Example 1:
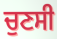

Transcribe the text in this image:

ਚੁਣਸੀ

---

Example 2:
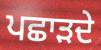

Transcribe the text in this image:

ਪਛਾੜਦੇ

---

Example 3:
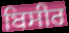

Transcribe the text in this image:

ਬਿਸੀਰ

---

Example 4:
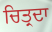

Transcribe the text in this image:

ਚਿਤ੍ਰਦਾ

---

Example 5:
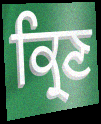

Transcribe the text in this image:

ਕ੍ਰਿਣ